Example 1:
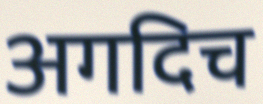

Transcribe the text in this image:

अगदिच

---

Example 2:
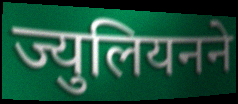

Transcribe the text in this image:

ज्युलियनने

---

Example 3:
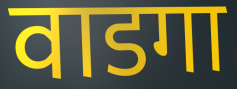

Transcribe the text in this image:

वाडगा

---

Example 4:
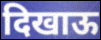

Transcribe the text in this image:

दिखाऊ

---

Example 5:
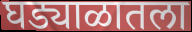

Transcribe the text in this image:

घड्याळातला